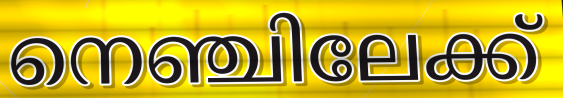
നെഞ്ചിലേക്ക്